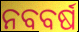
ନବବର୍ଷ